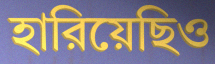
হারিয়েছিও